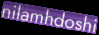
nilamhdoshi